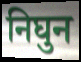
निघुन